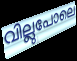
വില്ലുപോലെ